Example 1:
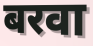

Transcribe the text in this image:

बरवा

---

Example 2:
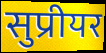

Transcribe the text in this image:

सुप्रीयर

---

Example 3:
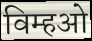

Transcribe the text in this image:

विम्हओ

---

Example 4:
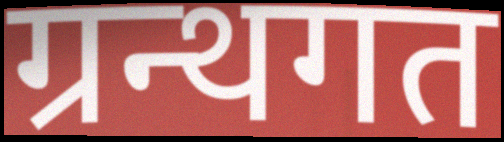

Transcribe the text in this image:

ग्रन्थगत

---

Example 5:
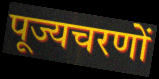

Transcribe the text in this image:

पूज्यचरणों